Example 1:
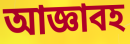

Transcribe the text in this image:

আজ্ঞাবহ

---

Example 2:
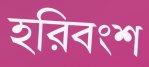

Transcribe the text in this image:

হরিবংশ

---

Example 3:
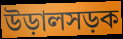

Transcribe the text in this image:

উড়ালসড়ক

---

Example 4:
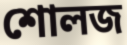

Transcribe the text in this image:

শোলজ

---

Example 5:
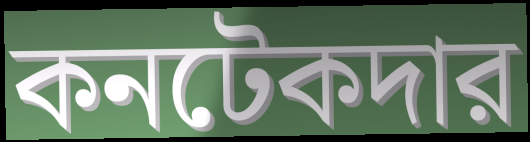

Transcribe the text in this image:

কনটেকদার